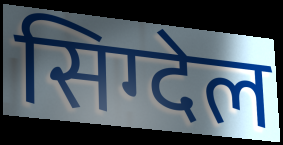
सिग्देल